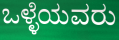
ಒಳ್ಳೆಯವರು